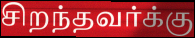
சிறந்தவர்க்கு